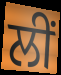
ਲੀਂ